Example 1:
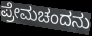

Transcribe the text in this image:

ಪ್ರೇಮಚಂದನು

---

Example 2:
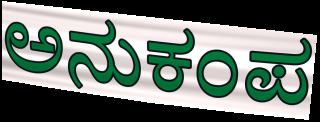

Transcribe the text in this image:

ಅನುಕಂಪ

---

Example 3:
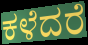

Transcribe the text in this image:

ಕಳೆದರೆ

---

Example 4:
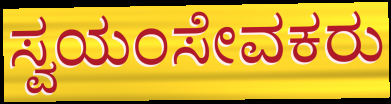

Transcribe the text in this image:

ಸ್ವಯಂಸೇವಕರು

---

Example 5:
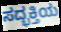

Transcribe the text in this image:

ಸದ್ಭಕ್ತಿಯ